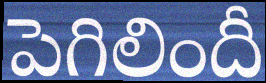
పెగిలిందీ